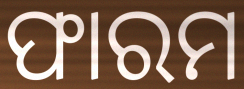
ଫାରମ